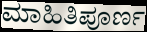
ಮಾಹಿತಿಪೂರ್ಣ